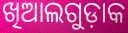
ଖିଆଲଗୁଡ଼ାକ